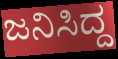
ಜನಿಸಿದ್ದ